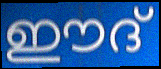
ഈദ്